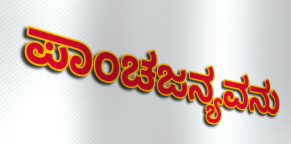
ಪಾಂಚಜನ್ಯವನು